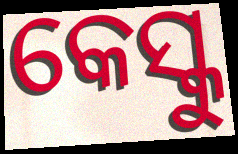
କେସ୍କୁ